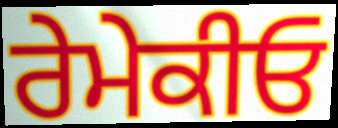
ਰੇਮੇਕੀਓ